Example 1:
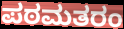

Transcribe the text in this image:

ಪಠಮತರಂ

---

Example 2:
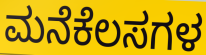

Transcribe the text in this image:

ಮನೆಕೆಲಸಗಳ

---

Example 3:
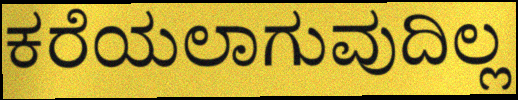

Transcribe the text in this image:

ಕರೆಯಲಾಗುವುದಿಲ್ಲ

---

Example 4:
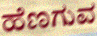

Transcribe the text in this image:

ಹೆಣಗುವ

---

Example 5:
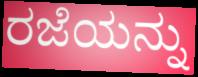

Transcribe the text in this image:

ರಜೆಯನ್ನು